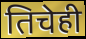
तिचेही